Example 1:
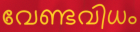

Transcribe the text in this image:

വേണ്ടവിധം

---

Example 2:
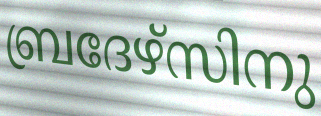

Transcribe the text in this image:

ബ്രദേഴ്സിനു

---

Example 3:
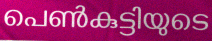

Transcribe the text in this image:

പെൺകുട്ടിയുടെ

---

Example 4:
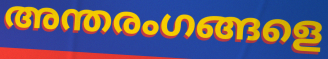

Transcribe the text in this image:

അന്തരംഗങ്ങളെ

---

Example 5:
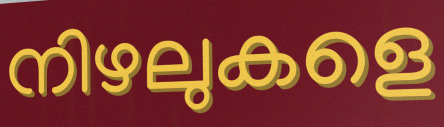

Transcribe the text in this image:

നിഴലുകളെ